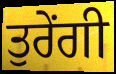
ਤੁਰੇਂਗੀ